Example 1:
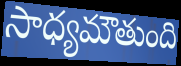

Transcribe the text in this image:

సాధ్యమౌతుంది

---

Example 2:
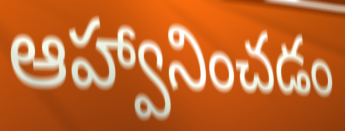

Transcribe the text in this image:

ఆహ్వానించడం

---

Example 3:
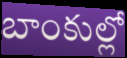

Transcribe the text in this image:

బాంకుల్లో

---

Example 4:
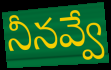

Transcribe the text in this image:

నీనవ్వే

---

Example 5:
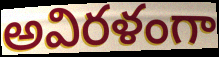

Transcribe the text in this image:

అవిరళంగా